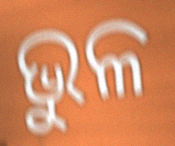
ଭୁଳ